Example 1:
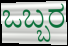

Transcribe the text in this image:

ಒಬ್ಬರ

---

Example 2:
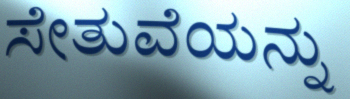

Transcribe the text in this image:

ಸೇತುವೆಯನ್ನು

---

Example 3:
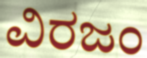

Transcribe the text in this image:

ವಿರಜಂ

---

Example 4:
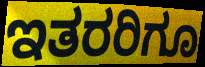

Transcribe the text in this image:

ಇತರರಿಗೂ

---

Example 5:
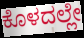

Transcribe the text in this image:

ಕೊಳದಲ್ಲೇ